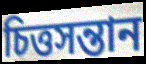
চিত্তসন্তান